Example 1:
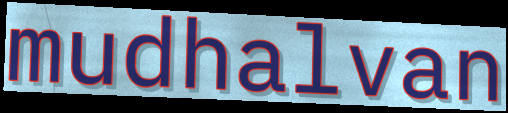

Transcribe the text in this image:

mudhalvan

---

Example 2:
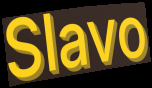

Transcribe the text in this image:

Slavo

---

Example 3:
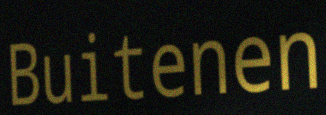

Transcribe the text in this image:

Buitenen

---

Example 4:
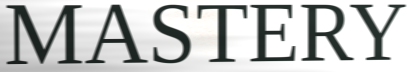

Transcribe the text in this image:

MASTERY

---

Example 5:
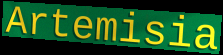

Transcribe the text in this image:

Artemisia